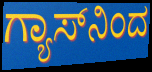
ಗ್ಯಾಸ್‌ನಿಂದ